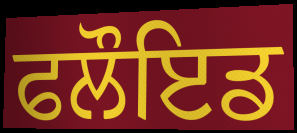
ਫਲੌਇਡ